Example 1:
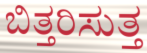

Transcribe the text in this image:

ಬಿತ್ತರಿಸುತ್ತ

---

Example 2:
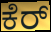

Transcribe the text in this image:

ಕೆರ್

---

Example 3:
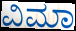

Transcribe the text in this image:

ವಿಮಾ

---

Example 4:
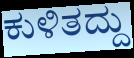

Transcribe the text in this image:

ಕುಳಿತದ್ದು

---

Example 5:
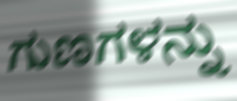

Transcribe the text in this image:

ಗುಣಗಳನ್ನು